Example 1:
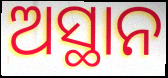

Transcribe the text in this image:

ଅସ୍ଥାନ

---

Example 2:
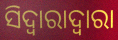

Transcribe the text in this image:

ସିଦ୍ୱାରାଦ୍ୱାରା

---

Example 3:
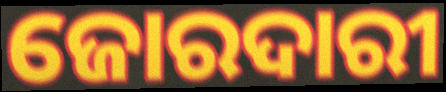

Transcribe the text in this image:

ଜୋରଦାରୀ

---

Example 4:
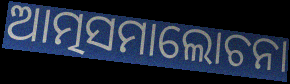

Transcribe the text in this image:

ଆତ୍ମସମାଲୋଚନା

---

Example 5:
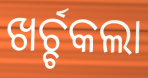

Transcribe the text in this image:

ଖର୍ଚ୍ଚକଲା